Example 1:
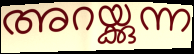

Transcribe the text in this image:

അറയ്ക്കുന്ന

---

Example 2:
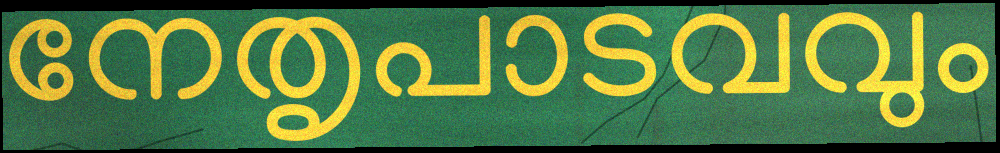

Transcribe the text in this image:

നേതൃപാടവവും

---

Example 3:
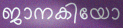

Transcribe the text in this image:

ജാനകിയോ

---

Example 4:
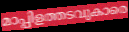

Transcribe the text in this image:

മാപ്പിളത്തടവുകാരെ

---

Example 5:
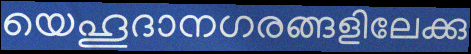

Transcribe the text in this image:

യെഹൂദാനഗരങ്ങളിലേക്കു